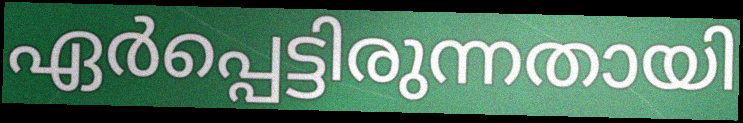
ഏർപ്പെട്ടിരുന്നതായി